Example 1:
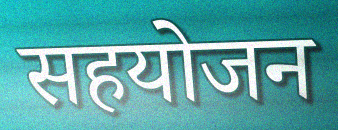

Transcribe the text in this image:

सहयोजन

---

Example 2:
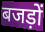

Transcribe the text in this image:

बजड़ों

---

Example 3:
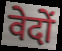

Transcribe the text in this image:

वेदों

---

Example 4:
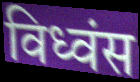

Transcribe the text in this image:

विध्वंस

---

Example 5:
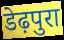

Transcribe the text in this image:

डेढ़पुरा